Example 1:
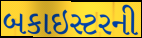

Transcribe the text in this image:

બકાઇસ્ટરની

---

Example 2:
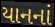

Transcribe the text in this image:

યાનનાં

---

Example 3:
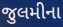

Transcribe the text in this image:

જુલમીના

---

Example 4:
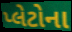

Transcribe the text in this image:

પ્લેટોના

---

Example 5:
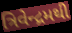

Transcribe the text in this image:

ત્રિવેન્દ્રમથી